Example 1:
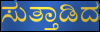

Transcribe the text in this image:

ಸುತ್ತಾಡಿದ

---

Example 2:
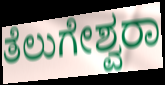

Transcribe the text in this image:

ತೆಲುಗೇಶ್ವರಾ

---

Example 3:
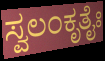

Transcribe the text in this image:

ಸ್ವಲಂಕೃತೈಃ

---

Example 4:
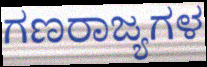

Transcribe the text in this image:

ಗಣರಾಜ್ಯಗಳ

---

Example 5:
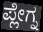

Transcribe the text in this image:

ಪ್ಲೇಗ್ನ